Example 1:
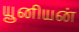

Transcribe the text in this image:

யூனியன்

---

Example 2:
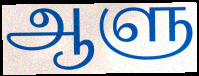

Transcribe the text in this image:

ஆளு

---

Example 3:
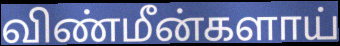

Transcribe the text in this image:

விண்மீன்களாய்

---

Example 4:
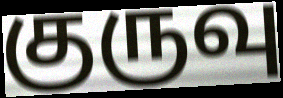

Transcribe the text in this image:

குருவு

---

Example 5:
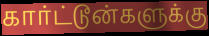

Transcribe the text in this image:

கார்ட்டூன்களுக்கு